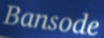
Bansode